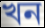
খন